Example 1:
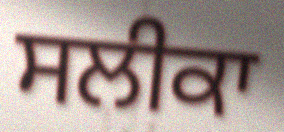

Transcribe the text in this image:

ਸਲੀਕਾ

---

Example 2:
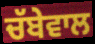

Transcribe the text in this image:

ਚੱਬੇਵਾਲ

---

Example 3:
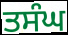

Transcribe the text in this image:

ਤਸੰਘ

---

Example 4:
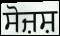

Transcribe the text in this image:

ਸੋਜ਼ਸ਼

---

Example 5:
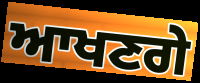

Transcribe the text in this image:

ਆਖਣਗੇ